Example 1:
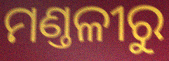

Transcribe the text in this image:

ମଣ୍ତଳୀରୁ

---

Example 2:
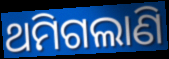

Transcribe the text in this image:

ଥମିଗଲାଣି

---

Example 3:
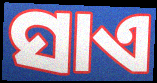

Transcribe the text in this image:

ସାଏ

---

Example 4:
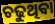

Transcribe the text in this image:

ଚଢୁଥିବା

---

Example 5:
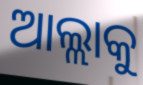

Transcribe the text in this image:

ଆଲ୍ଲାକୁ